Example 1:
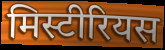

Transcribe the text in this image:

मिस्टीरियस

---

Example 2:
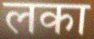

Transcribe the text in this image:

लका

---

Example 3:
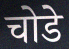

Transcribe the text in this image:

चोडे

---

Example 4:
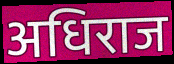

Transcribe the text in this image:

अधिराज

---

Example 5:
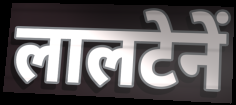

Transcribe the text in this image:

लालटेनें